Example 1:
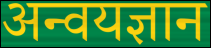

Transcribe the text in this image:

अन्वयज्ञान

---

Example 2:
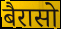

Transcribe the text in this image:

बैरासो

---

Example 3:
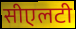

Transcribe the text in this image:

सीएलटी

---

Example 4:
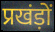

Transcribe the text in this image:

प्रखंड़ों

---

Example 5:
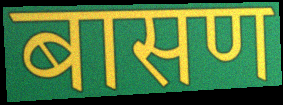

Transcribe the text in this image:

बासण